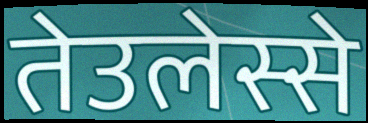
तेउलेस्से